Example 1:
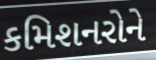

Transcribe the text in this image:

કમિશનરોને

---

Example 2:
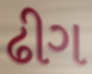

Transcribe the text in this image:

ઢીગ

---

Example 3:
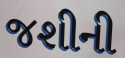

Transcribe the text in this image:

જશીની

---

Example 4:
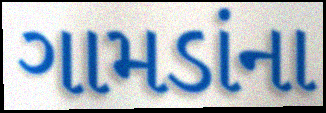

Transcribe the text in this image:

ગામડાંના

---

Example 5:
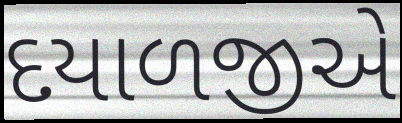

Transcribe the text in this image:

દયાળજીએ